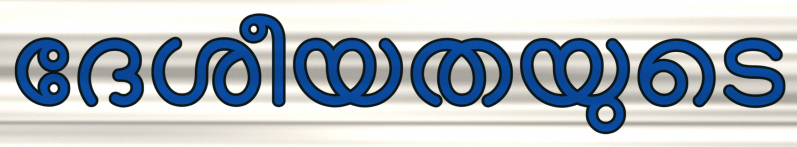
ദേശീയതയുടെ